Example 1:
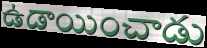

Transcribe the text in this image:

ఉడాయించాడు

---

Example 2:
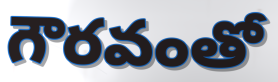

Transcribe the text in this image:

గౌరవంతో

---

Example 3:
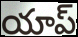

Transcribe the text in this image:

యాప్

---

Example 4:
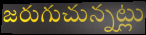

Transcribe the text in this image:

జరుగుచున్నట్లు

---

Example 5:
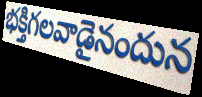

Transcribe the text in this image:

భక్తిగలవాడైనందున